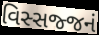
વિસ્સજ્જનં